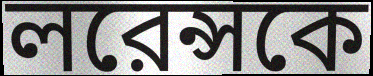
লরেন্সকে